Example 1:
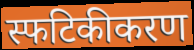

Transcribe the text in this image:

स्फटिकीकरण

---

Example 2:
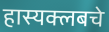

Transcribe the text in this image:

हास्यक्लबचे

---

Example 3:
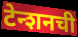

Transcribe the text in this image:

टेन्शनची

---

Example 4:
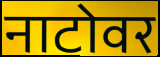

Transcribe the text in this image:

नाटोवर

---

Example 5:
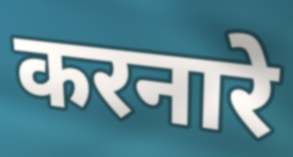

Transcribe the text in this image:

करनारे